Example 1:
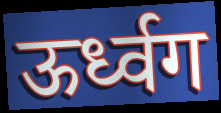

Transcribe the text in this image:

ऊर्ध्वग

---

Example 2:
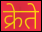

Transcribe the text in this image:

क्रेते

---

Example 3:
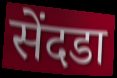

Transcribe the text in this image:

सेंदडा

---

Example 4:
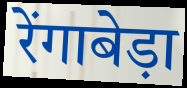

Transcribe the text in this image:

रेंगाबेड़ा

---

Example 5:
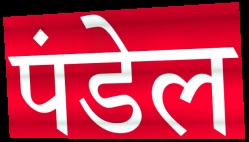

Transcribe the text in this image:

पंडेल